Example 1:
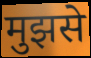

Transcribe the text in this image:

मुझसे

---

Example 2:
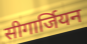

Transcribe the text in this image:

सीगार्जियन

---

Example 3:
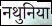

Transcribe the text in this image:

नथुनिया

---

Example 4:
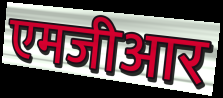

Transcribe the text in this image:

एमजीआर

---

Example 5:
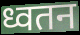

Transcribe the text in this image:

ध्वतन